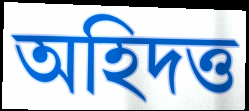
অহিদত্ত